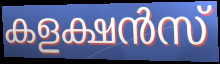
കളക്ഷൻസ്